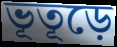
ভূতূড়ে